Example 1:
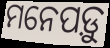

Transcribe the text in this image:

ମନେପଡ଼ୁ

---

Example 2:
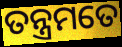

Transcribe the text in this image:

ତନ୍ତ୍ରମତେ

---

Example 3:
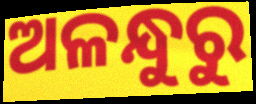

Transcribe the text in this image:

ଅଳନ୍ଧୁରୁ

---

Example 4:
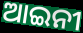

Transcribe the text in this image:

ଆଇନୀ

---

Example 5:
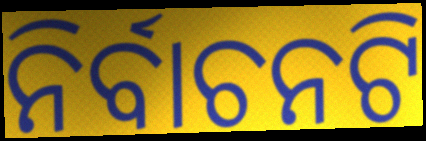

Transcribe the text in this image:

ନିର୍ବାଚନଟି